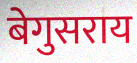
बेगुसराय